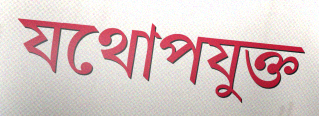
যথোপযুক্ত